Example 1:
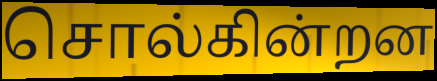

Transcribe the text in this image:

சொல்கின்றன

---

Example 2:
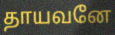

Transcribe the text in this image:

தாயவனே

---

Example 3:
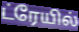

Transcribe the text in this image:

ட்ரேயில்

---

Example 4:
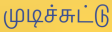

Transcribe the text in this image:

முடிச்சுட்டு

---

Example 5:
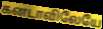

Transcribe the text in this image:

கனடாவிலேயே